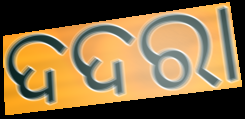
ଦଦରା